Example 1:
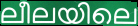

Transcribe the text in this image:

ലീലയിലെ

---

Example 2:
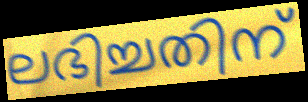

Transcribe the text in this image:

ലഭിച്ചതിന്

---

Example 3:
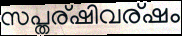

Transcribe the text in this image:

സപ്തര്ഷിവര്ഷം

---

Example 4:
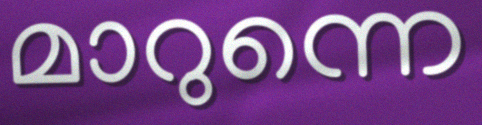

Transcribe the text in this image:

മാറുന്നെ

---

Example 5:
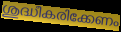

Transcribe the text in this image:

ശുദ്ധീകരിക്കേണം